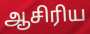
ஆசிரிய